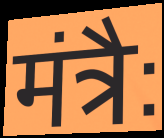
मंत्रैः